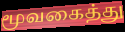
மூவகைத்து